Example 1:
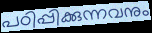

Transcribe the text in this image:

പഠിപ്പിക്കുന്നവനും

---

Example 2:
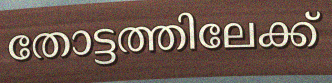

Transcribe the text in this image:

തോട്ടത്തിലേക്ക്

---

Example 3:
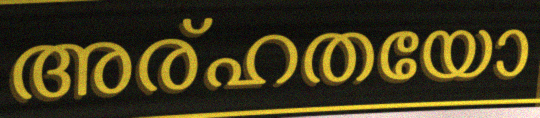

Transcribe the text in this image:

അര്ഹതയോ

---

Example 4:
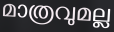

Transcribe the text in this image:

മാത്രവുമല്ല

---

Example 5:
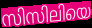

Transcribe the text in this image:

സിസിലിയെ